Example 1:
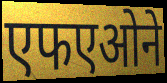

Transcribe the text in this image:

एफएओने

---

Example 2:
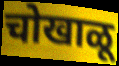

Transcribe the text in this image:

चोखाळू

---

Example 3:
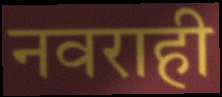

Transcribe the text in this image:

नवराही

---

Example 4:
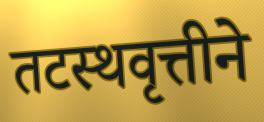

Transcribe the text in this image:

तटस्थवृत्तीने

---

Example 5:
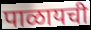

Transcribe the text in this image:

पाळायची